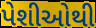
પેશીઓથી